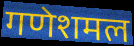
गणेशमल